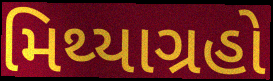
મિથ્યાગ્રહો